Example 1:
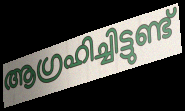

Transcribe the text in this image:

ആഗ്രഹിച്ചിട്ടുണ്ട്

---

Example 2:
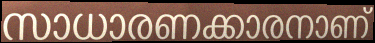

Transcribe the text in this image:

സാധാരണക്കാരനാണ്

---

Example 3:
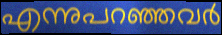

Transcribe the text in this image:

എന്നുപറഞ്ഞവർ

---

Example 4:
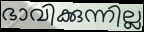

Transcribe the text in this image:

ഭാവിക്കുന്നില്ല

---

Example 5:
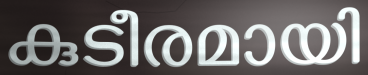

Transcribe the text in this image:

കുടീരമായി